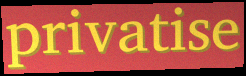
privatise